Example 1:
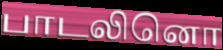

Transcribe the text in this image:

பாடலினொ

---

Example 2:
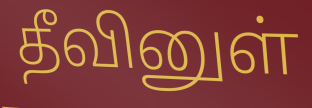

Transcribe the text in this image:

தீவினுள்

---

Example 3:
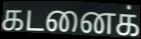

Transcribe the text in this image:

கடனைக்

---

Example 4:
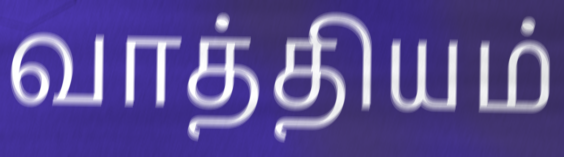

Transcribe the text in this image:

வாத்தியம்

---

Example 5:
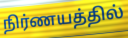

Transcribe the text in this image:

நிர்ணயத்தில்